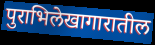
पुराभिलेखागारातील